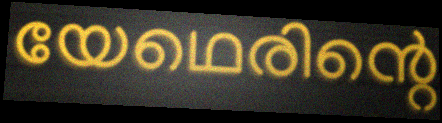
യേഥെരിന്റെ